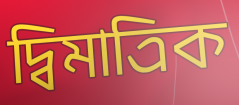
দ্বিমাত্ৰিক